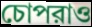
চোপরাও